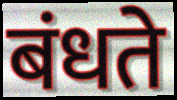
बंधते